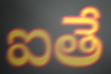
ఐతే